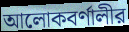
আলোকবর্ণালীর